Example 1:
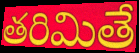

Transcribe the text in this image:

తరిమితే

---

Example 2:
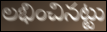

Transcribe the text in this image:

లభించినట్టు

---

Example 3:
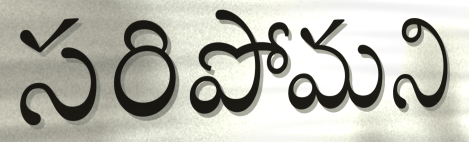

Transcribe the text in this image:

సరిపోమని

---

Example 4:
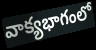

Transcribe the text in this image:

వాక్యభాగంలో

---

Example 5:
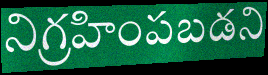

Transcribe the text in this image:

నిగ్రహింపబడని